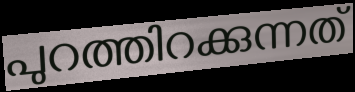
പുറത്തിറക്കുന്നത്